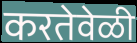
करतेवेळी